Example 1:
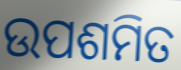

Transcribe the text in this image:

ଉପଶମିତ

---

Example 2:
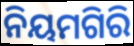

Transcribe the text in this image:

ନିୟମଗିରି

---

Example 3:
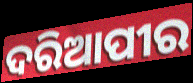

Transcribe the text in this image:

ଦରିଆପୀର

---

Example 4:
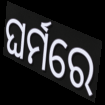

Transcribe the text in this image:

ଘର୍ମରେ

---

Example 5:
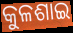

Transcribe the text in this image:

କୁଳଶାଇ